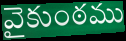
వైకుంఠము